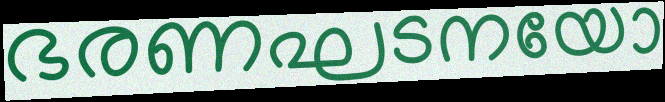
ഭരണഘടനയോ